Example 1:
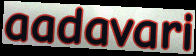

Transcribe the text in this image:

aadavari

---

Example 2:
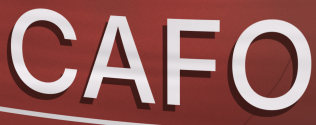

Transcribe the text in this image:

CAFO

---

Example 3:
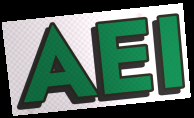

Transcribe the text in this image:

AEI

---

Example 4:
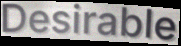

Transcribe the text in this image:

Desirable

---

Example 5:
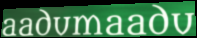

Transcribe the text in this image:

aadumaadu